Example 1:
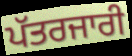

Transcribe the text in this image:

ਪੱਤਰਜਾਰੀ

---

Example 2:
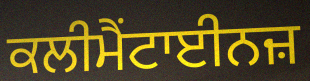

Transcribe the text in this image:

ਕਲੀਮੈਂਟਾਈਨਜ਼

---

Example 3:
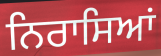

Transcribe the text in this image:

ਨਿਰਾਸਿਆਂ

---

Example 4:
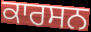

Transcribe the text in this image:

ਕਾਰਸਨ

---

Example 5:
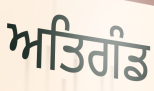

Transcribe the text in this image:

ਅਤਿਗੰਡ